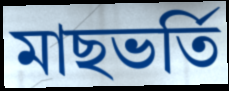
মাছভর্তি